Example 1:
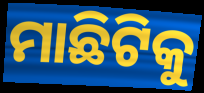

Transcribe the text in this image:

ମାଛିଟିକୁ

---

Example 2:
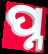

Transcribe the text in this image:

ପ୍ନ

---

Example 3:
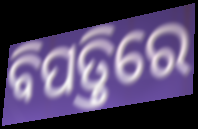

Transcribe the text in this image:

ବିପତ୍ତିରେ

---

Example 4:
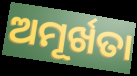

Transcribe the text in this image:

ଅମୂର୍ଖତା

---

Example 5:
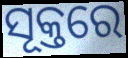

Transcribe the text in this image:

ସୂକ୍ତରେ